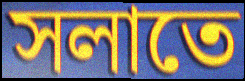
সলাতে